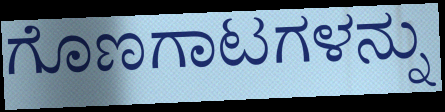
ಗೊಣಗಾಟಗಳನ್ನು